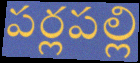
పర్లపల్లి